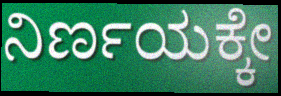
ನಿರ್ಣಯಕ್ಕೇ